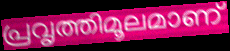
പ്രവൃത്തിമൂലമാണ്